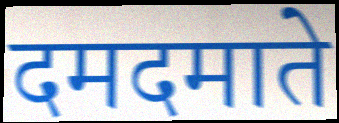
दमदमाते